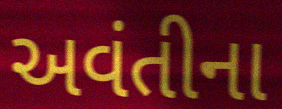
અવંતીના